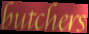
butchers